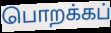
பொறக்கப்